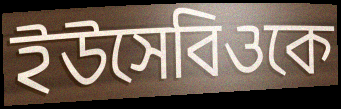
ইউসেবিওকে